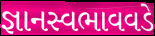
જ્ઞાનસ્વભાવવડે